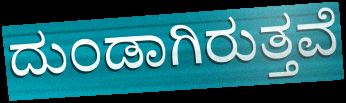
ದುಂಡಾಗಿರುತ್ತವೆ